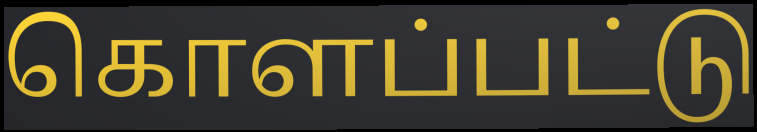
கொளப்பட்டு